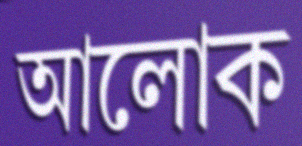
আলোক